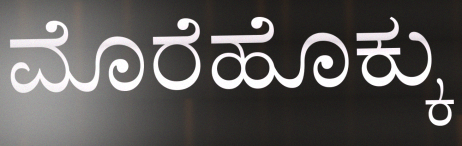
ಮೊರೆಹೊಕ್ಕು